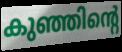
കുഞ്ഞിന്റെ